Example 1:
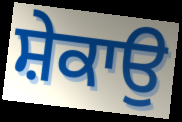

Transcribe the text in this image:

ਸ਼ੇਕਾਉ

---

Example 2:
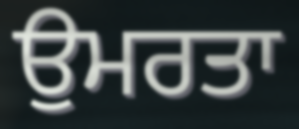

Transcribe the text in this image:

ਉਮਰਤਾ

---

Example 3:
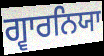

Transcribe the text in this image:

ਗ੍ਵਾਰਨਿਯਾ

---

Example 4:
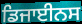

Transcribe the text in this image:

ਡਿਜਾਈਨਸ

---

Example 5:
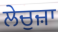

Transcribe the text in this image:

ਲੇਚੁਜ਼ਾ